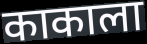
काकाला